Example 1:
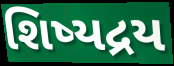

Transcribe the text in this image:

શિષ્યદ્રય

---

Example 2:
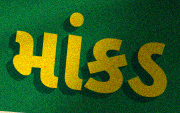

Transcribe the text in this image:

માંકડ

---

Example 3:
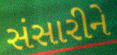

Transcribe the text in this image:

સંસારીને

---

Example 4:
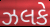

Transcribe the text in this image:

ઝલકે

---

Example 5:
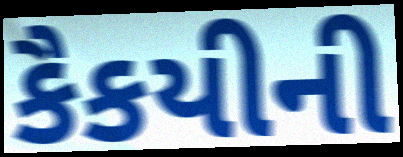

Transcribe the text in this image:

કૈકયીની